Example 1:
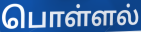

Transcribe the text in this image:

பொள்ளல்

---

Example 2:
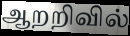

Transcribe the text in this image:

ஆறறிவில்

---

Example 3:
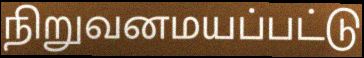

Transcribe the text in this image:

நிறுவனமயப்பட்டு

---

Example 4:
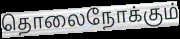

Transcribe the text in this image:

தொலைநோக்கும்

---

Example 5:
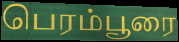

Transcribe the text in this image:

பெரம்பூரை